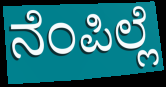
ನೆಂಪಿಲ್ಲೆ